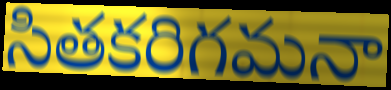
సితకరిగమనా